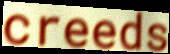
creeds